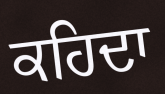
ਕਹਿਦਾ